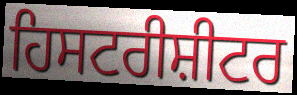
ਹਿਸਟਰੀਸ਼ੀਟਰ